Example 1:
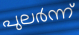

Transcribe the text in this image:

പുലർന്ന്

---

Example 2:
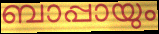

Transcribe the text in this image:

ബാപ്പായും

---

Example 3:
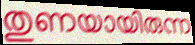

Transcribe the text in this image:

തുണയായിരുന്ന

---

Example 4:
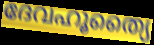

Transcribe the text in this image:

ദേവഹൂത്യൈ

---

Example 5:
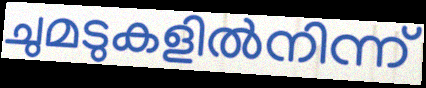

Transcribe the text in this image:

ചുമടുകളിൽനിന്ന്